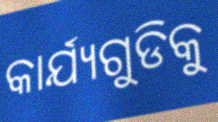
କାର୍ଯ୍ୟଗୁଡିକୁ